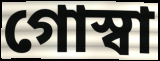
গোস্বা